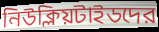
নিউক্লিয়টাইডদের